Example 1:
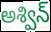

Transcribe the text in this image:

అశ్విన్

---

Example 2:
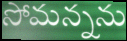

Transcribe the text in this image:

సోమన్నను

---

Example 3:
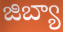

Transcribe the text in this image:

జిబ్యా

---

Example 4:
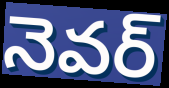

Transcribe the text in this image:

నెవర్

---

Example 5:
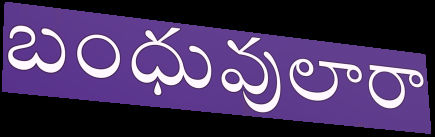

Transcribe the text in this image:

బంధువులారా